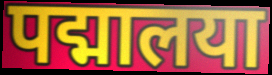
पद्मालया